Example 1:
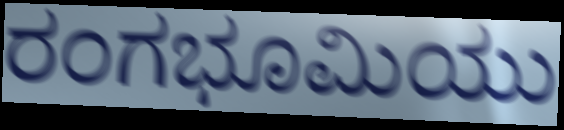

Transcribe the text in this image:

ರಂಗಭೂಮಿಯು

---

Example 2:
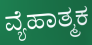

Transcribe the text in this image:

ವ್ಯೆಹಾತ್ಮಕ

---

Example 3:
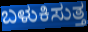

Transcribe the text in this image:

ಬಳುಕಿಸುತ್ತ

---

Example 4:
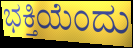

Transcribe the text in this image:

ಭಕ್ತಿಯೆಂದು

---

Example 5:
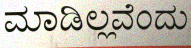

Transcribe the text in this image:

ಮಾಡಿಲ್ಲವೆಂದು